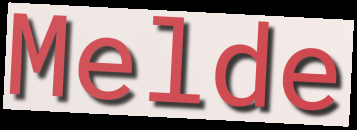
Melde